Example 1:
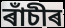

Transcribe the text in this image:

ৰাঁচীৰ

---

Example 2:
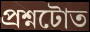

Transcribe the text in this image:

প্ৰশ্নটোত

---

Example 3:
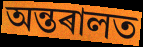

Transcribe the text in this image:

অন্তৰালত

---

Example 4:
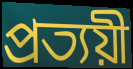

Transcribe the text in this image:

প্ৰত্যয়ী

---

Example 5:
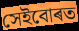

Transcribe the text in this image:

সেইবোৰত